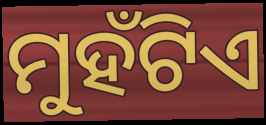
ମୁହଁଟିଏ